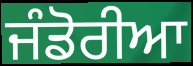
ਜੰਡੋਰੀਆ